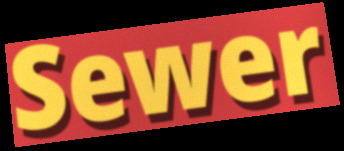
Sewer